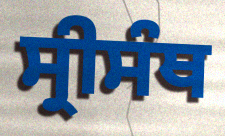
ਸ੍ਰੀਸੰਥ